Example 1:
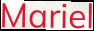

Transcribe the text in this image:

Mariel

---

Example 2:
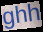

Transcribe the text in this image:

ghh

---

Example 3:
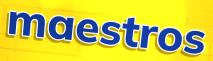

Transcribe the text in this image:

maestros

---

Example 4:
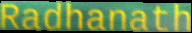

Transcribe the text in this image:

Radhanath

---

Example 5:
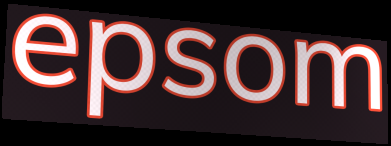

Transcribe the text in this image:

epsom